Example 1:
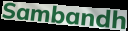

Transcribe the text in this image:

Sambandh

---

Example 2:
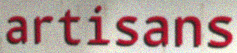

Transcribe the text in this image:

artisans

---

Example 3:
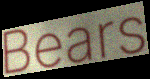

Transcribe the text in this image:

Bears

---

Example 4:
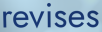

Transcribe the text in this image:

revises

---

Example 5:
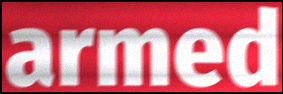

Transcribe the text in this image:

armed